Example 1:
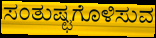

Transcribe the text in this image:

ಸಂತುಷ್ಟಗೊಳಿಸುವ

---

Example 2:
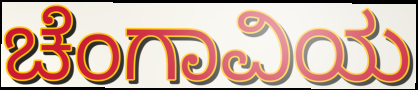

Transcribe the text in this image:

ಚೆಂಗಾವಿಯ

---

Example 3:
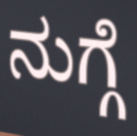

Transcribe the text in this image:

ನುಗ್ಗೆ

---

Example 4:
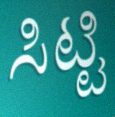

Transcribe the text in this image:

ಸಿಟ್ಟಿ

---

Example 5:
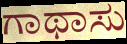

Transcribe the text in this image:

ಗಾಥಾಸು